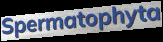
Spermatophyta